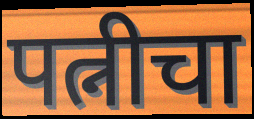
पत्नीचा